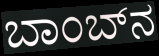
ಬಾಂಬ್‍ನ